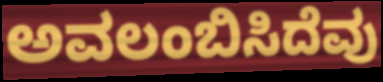
ಅವಲಂಬಿಸಿದೆವು